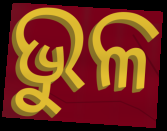
ଭୁଳ